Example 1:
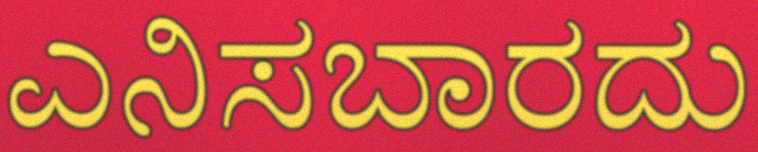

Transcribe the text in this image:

ಎನಿಸಬಾರದು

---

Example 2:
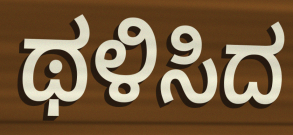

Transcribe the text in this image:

ಥಳಿಸಿದ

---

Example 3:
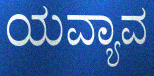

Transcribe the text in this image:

ಯವ್ಯಾವ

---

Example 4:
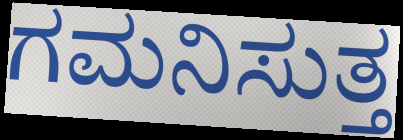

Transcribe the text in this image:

ಗಮನಿಸುತ್ತ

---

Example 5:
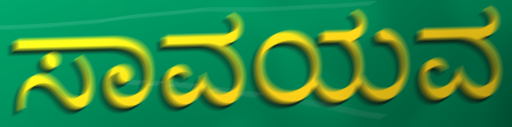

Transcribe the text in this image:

ಸಾವಯವ